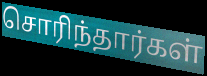
சொரிந்தார்கள்